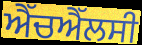
ਐੱਚਐੱਲਸੀ